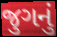
જુગનું